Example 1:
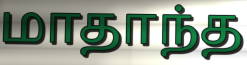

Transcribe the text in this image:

மாதாந்த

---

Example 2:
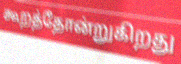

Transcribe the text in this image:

கூறத்தோன்றுகிறது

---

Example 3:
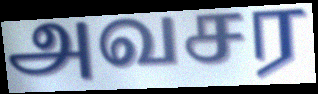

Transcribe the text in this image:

அவசர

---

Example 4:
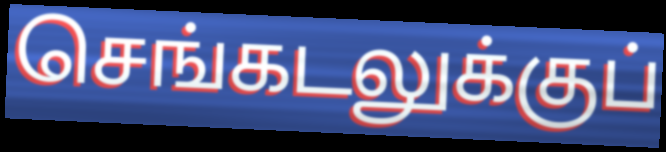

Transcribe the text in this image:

செங்கடலுக்குப்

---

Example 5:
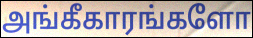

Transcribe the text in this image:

அங்கீகாரங்களோ